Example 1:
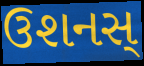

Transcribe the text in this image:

ઉશનસ્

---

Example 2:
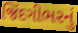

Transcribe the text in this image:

જિંદગીભરનું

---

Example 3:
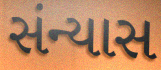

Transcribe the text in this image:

સંન્યાસ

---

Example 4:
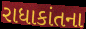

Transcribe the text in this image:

રાધાકાંતના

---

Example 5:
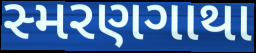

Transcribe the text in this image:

સ્મરણગાથા